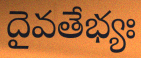
దైవతేభ్యః